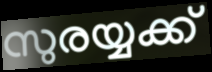
സുരയ്യക്ക്